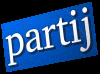
partij